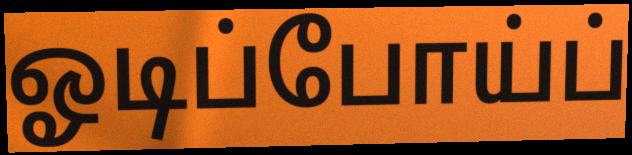
ஓடிப்போய்ப்